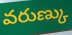
వరుణ్కు